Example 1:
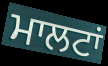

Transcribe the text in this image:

ਮਾਲਟਾਂ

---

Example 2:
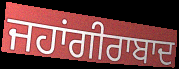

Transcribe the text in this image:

ਜਹਾਂਗੀਰਾਬਾਦ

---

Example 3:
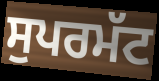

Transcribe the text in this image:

ਸੁਪਰਮੱਟ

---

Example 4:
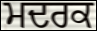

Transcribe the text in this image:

ਮਦਰਕ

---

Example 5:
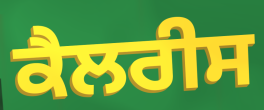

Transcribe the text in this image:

ਕੈਲਰੀਸ